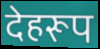
देहरूप